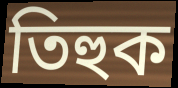
তিহুক